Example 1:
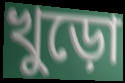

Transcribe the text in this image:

খুড়ো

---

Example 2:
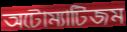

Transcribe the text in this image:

অটোম্যাটিজম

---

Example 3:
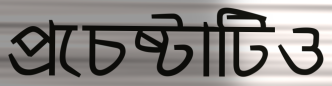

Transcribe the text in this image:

প্রচেষ্টাটিও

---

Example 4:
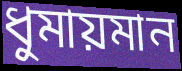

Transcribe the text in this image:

ধুমায়মান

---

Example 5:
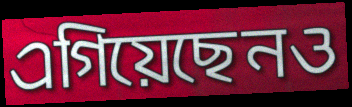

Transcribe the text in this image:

এগিয়েছেনও